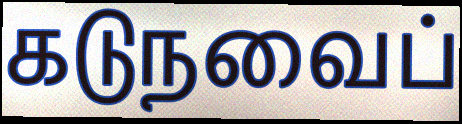
கடுநவைப்